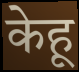
केहू